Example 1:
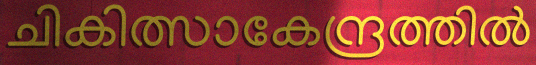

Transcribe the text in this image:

ചികിത്സാകേന്ദ്രത്തിൽ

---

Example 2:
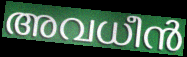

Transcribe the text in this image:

അവധീൻ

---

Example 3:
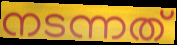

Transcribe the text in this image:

നടന്നത്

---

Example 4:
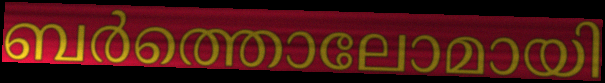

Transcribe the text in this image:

ബർത്തൊലോമായി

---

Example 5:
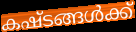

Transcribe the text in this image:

കഷ്ടങ്ങൾക്ക്